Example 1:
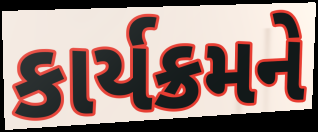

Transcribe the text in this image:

કાર્યક્રમને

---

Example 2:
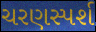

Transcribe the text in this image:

ચરણસ્પર્શ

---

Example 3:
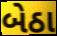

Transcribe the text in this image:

બેઠા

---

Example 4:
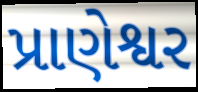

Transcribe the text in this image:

પ્રાણેશ્વર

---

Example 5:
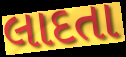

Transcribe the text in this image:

લાદતા